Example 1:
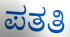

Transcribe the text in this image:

ಪತತಿ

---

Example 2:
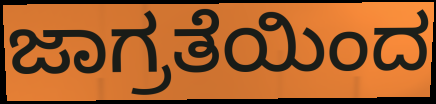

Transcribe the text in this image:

ಜಾಗ್ರತೆಯಿಂದ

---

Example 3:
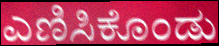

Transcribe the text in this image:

ಎಣಿಸಿಕೊಂಡು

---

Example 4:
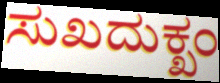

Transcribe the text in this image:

ಸುಖದುಕ್ಖಂ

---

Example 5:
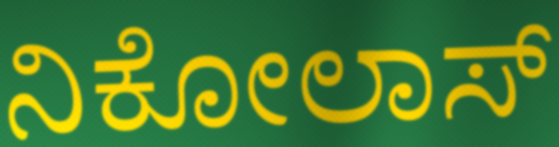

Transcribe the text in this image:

ನಿಕೋಲಾಸ್